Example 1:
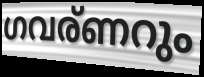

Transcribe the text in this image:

ഗവര്ണറും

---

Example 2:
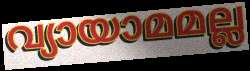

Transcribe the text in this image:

വ്യായാമമല്ല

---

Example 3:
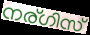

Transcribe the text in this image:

നര്ഗിസ്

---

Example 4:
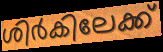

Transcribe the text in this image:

ശിർകിലേക്ക്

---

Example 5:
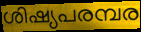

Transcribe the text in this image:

ശിഷ്യപരമ്പര